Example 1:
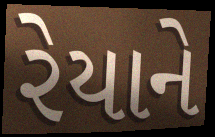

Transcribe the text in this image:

રેયાને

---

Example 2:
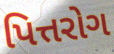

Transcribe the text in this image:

પિત્તરોગ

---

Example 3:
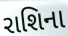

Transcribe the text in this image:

રાશિના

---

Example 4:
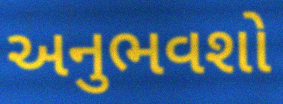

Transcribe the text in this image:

અનુભવશો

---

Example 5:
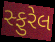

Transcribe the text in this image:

સ્ફુરેલ